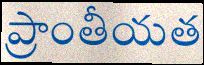
ప్రాంతీయత